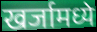
खर्जामध्ये